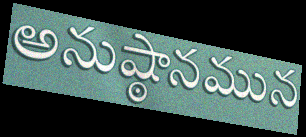
అనుష్ఠానమున